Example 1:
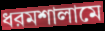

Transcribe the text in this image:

ধরমশালামে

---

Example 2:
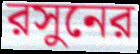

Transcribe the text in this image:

রসুনের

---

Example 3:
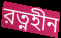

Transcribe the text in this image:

রত্নহীন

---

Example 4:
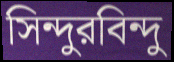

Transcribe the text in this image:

সিন্দুরবিন্দু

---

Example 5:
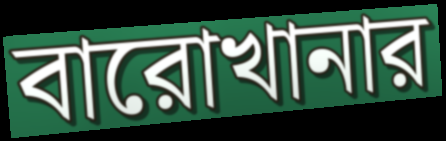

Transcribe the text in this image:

বারোখানার